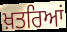
ਖ਼ਤਰਿਆਂ